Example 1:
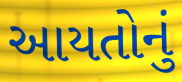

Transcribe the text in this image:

આયતોનું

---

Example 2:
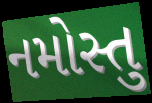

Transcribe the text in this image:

નમોસ્તુ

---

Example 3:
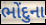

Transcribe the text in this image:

ભોંદુના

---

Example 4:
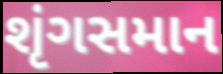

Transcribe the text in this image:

શૃંગસમાન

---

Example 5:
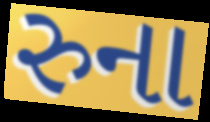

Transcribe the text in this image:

રુના